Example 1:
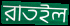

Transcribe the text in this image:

রাতইল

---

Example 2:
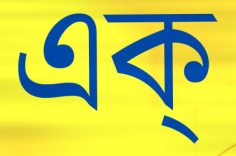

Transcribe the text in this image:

এক্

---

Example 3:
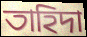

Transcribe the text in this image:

তাহিদা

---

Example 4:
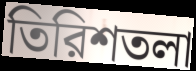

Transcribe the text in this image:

তিরিশতলা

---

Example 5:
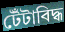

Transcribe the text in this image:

টেঁটাবিদ্ধ